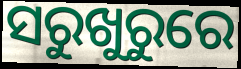
ସରୁଖୁରୁରେ